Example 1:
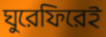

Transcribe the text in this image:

ঘুরেফিরেই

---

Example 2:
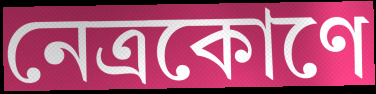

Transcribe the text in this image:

নেত্রকোণে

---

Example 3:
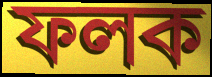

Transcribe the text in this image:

ফলক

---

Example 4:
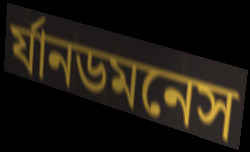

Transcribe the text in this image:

র্যানডমনেস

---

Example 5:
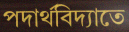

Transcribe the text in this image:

পদার্থবিদ্যাতে